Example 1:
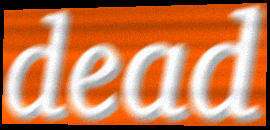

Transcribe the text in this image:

dead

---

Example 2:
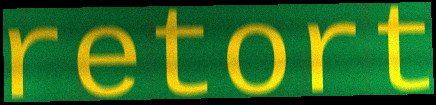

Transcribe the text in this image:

retort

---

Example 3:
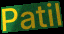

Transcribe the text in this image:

Patil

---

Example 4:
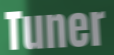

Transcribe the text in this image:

Tuner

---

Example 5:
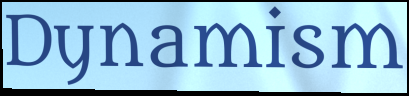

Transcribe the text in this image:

Dynamism